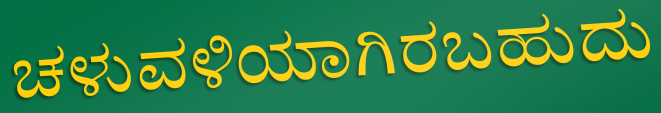
ಚಳುವಳಿಯಾಗಿರಬಹುದು